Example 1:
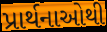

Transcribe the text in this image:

પ્રાર્થનાઓથી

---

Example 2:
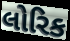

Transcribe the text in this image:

લોરિક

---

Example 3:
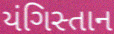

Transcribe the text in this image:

યંગિસ્તાન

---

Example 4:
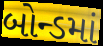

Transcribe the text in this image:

બોન્ડમાં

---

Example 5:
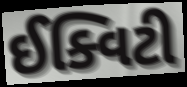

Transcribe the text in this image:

ઈક્વિટી